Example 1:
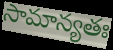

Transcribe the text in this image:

సామాన్యతః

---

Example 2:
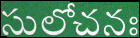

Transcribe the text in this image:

సులోచనః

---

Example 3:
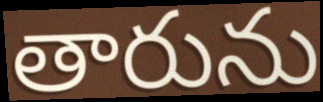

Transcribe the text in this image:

తారును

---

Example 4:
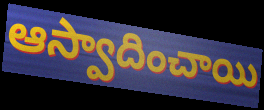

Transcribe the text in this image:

ఆస్వాదించాయి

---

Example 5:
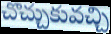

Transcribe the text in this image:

చొచ్చుకువచ్చి